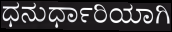
ಧನುರ್ಧಾರಿಯಾಗಿ